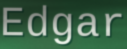
Edgar